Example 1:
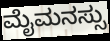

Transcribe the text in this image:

ಮೈಮನಸ್ಸು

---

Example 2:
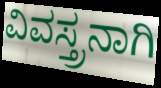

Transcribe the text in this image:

ವಿವಸ್ತ್ರನಾಗಿ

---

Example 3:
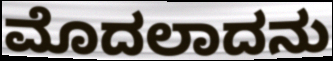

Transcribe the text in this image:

ಮೊದಲಾದನು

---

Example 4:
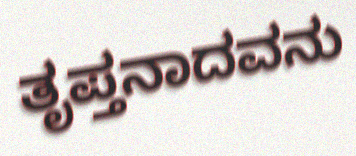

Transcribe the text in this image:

ತೃಪ್ತನಾದವನು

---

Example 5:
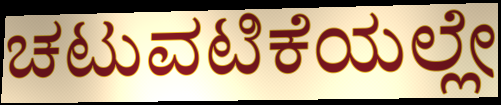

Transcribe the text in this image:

ಚಟುವಟಿಕೆಯಲ್ಲೇ